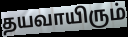
தயவாயிரும்